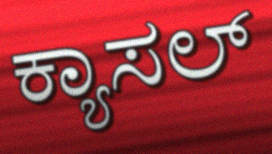
ಕ್ಯಾಸಲ್